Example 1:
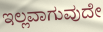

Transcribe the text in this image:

ಇಲ್ಲವಾಗುವುದೇ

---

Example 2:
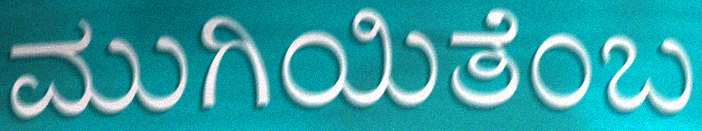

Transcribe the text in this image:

ಮುಗಿಯಿತೆಂಬ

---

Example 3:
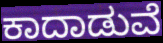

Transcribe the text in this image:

ಕಾದಾಡುವೆ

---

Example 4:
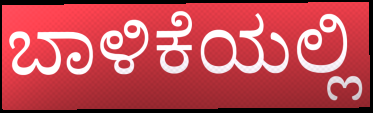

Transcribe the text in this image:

ಬಾಳಿಕೆಯಲ್ಲಿ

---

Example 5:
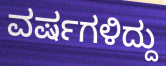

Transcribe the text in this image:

ವರ್ಷಗಳಿದ್ದು